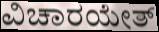
ವಿಚಾರಯೇತ್